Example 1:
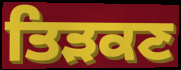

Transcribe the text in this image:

ਤਿੜਕਣ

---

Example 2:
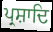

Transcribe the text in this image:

ਪ੍ਰਸ਼ਾਦਿ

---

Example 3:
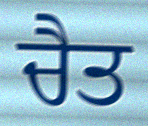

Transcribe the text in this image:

ਚੈਤ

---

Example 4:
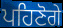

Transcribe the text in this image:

ਪਹਿਣੋਗੇ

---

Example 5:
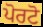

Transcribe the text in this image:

ਪੋਰਟੋ